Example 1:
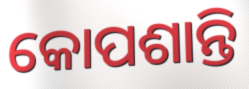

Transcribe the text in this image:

କୋପଶାନ୍ତି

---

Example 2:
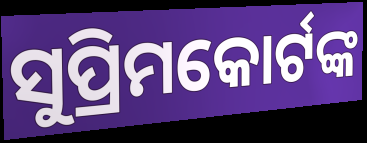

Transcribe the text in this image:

ସୁପ୍ରିମକୋର୍ଟଙ୍କ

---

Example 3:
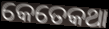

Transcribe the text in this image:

କେତେକଥା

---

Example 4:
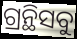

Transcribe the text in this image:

ଗ୍ରନ୍ଥିସବୁ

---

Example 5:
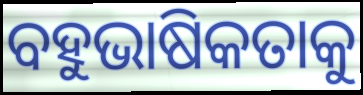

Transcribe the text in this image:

ବହୁଭାଷିକତାକୁ